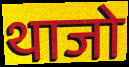
थाजो